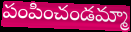
పంపించండమ్మా